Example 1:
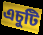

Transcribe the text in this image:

এচুটি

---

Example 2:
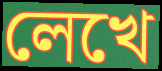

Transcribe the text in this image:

লেখে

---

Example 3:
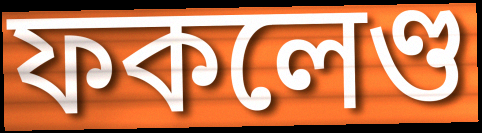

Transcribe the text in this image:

ফকলেণ্ড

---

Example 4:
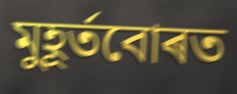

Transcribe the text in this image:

মুহূৰ্তবোৰত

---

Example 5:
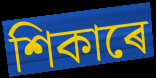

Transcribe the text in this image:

শিকাৰে